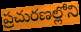
ప్రచురణల్లోని